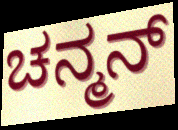
ಚನ್ಮನ್